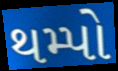
થમ્પો